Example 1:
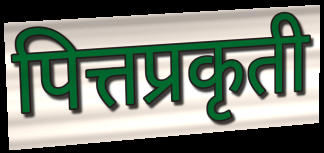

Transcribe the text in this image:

पित्तप्रकृती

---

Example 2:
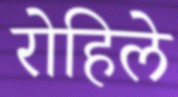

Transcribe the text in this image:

रोहिले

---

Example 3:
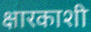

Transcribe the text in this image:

क्षारकाशी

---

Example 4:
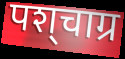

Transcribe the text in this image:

पश्चाग्र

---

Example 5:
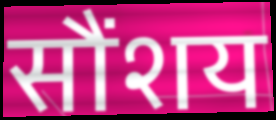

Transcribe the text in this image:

सौंशय